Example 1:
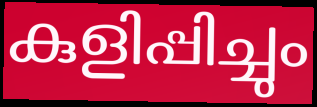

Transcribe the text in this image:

കുളിപ്പിച്ചും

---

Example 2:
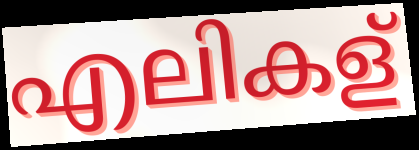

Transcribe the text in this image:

എലികള്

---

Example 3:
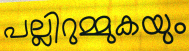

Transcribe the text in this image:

പല്ലിറുമ്മുകയും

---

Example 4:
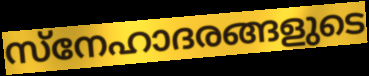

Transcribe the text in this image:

സ്നേഹാദരങ്ങളുടെ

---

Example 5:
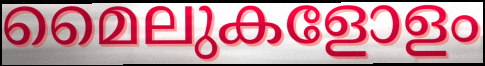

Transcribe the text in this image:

മൈലുകളോളം